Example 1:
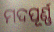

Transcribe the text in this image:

ମଦପୂର୍ଣ୍ଣ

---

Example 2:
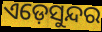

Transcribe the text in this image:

ଏଡ଼େସୁନ୍ଦର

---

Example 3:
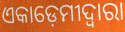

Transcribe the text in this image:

ଏକାଡ଼େମୀଦ୍ୱାରା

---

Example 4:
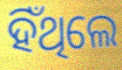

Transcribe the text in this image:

ହିଁଥିଲେ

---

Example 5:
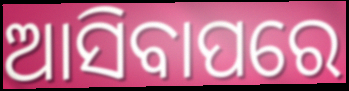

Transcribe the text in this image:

ଆସିବାପରେ